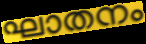
ഘാതനം